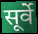
सूर्वे